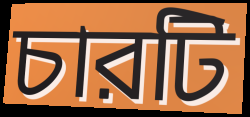
চারটি